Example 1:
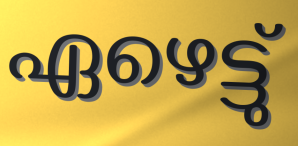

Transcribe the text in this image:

ഏഴെട്ടു്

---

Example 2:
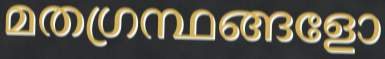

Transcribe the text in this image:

മതഗ്രന്ഥങ്ങളോ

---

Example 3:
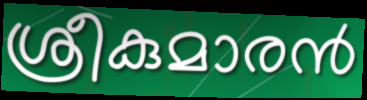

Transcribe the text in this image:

ശ്രീകുമാരൻ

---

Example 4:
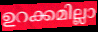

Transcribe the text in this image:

ഉറക്കമില്ലാ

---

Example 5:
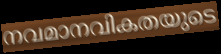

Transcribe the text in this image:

നവമാനവികതയുടെ